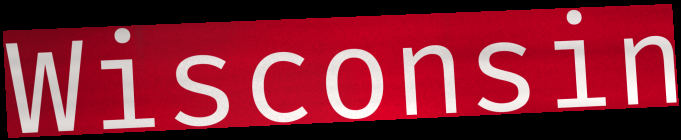
Wisconsin